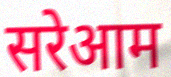
सरेआम